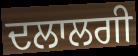
ਦਲਾਲਗੀ